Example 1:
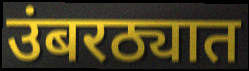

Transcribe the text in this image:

उंबरठ्यात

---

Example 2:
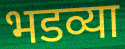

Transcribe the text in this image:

भडव्या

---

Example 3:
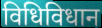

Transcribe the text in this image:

विधिविधान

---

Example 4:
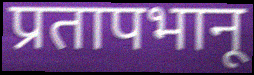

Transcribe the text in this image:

प्रतापभानू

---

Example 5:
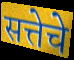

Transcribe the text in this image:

सत्तेचे